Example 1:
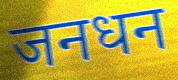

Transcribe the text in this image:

जनधन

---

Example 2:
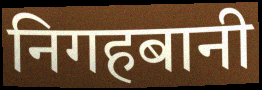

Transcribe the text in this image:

निगहबानी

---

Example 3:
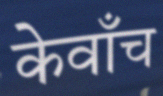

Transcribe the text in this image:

केवाँच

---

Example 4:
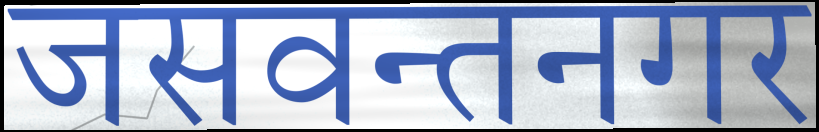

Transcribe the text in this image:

जसवन्तनगर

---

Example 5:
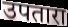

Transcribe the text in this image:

उपतारा